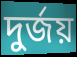
দুর্জয়